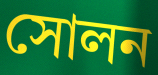
সোলন